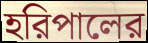
হরিপালের